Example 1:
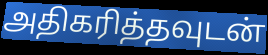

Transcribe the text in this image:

அதிகரித்தவுடன்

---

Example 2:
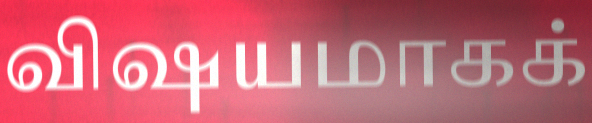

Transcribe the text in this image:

விஷயமாகக்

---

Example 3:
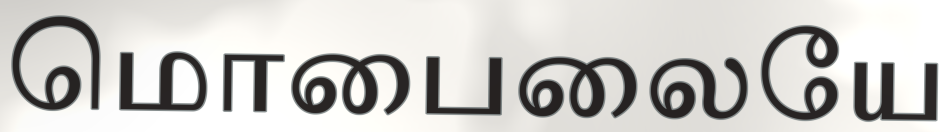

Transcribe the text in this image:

மொபைலையே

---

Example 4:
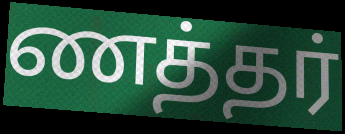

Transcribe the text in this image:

ணத்தர்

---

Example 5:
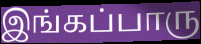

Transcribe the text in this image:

இங்கப்பாரு